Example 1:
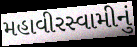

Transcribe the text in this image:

મહાવીરસ્વામીનું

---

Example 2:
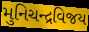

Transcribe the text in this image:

મુનિચન્દ્રવિજય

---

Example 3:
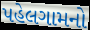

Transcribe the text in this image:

પહેલગામનો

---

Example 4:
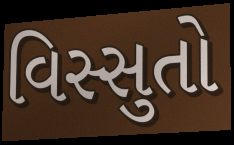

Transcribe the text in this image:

વિસ્સુતો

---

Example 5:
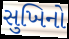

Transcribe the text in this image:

સુખિનો